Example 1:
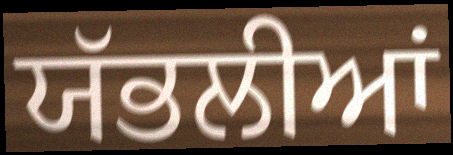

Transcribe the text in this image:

ਯੱਭਲੀਆਂ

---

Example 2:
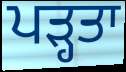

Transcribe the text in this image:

ਪੜ੍ਹਤਾ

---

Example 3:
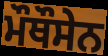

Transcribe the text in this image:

ਮੌਥੌਸੇਨ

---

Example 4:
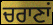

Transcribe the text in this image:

ਚਰਾਣਾਂ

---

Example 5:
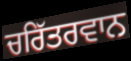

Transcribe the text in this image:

ਚਰਿੱਤਰਵਾਨ